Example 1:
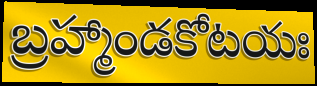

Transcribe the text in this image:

బ్రహ్మాండకోటయః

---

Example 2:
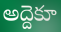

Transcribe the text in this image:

అద్దెకూ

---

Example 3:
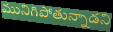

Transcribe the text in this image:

మునిగిపోతున్నాడని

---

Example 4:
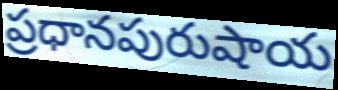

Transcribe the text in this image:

ప్రధానపురుషాయ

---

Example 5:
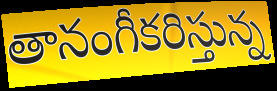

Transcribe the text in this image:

తానంగీకరిస్తున్న